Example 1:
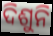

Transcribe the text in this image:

ଦିଶୁନି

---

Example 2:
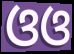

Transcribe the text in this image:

ଓଓ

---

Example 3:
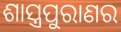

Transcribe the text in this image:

ଶାସ୍ତ୍ରପୁରାଣର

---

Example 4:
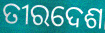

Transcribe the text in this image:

ତୀରଦେଶ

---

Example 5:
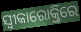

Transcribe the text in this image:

ସ୍ଵୀକାରୋକ୍ତିରେ